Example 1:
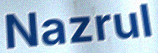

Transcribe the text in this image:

Nazrul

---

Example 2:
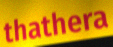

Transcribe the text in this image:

thathera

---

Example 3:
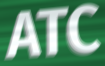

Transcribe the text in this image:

ATC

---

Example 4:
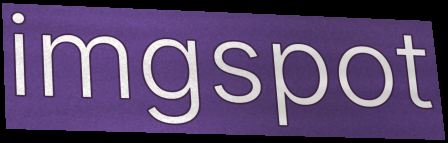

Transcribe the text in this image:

imgspot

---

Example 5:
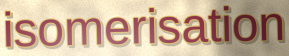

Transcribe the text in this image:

isomerisation